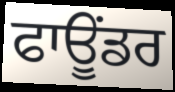
ਫਾਊਂਡਰ